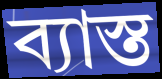
ব্যাস্ত